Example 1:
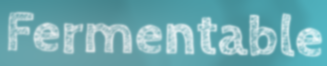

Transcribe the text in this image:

Fermentable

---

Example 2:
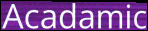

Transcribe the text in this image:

Acadamic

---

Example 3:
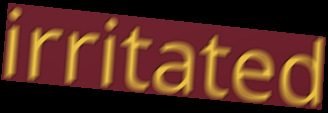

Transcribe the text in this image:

irritated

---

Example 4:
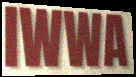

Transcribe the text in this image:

IWWA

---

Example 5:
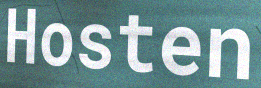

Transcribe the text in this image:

Hosten